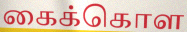
கைக்கொள